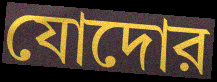
যোদোর